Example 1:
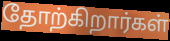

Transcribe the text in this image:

தோற்கிறார்கள்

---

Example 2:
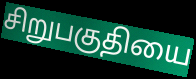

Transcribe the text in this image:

சிறுபகுதியை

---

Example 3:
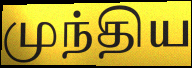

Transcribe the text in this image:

முந்திய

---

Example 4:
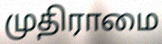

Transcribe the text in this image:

முதிராமை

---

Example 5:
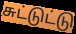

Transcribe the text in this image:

சுட்டுட்டு